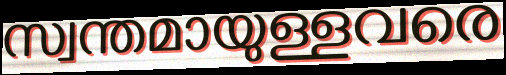
സ്വന്തമായുള്ളവരെ